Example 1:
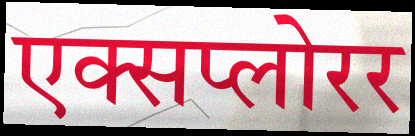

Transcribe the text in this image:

एक्सप्लोरर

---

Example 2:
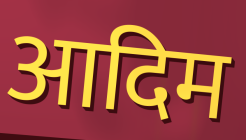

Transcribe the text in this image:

आदिम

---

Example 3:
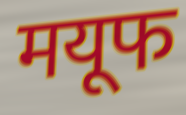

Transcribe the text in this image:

मयूफ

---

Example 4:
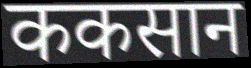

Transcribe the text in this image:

ककसान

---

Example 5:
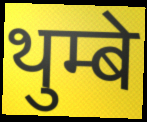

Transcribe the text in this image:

थुम्बे